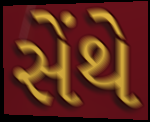
સેંથે